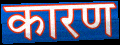
कारण